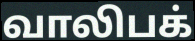
வாலிபக்